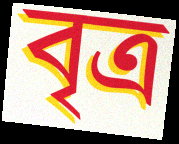
বৃত্ৰ